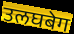
उलघबेग